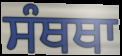
ਸੰਥਥਾ